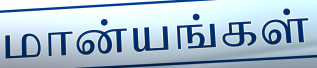
மான்யங்கள்